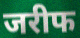
जरीफ